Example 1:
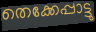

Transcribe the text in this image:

തെക്കേപ്പാട്ടു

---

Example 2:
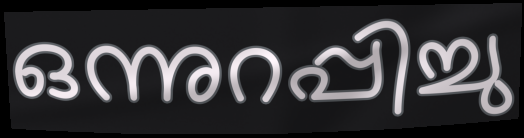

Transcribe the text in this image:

ഒന്നുറപ്പിച്ചു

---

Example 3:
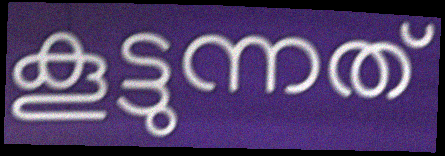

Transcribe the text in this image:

കൂട്ടുന്നത്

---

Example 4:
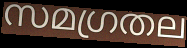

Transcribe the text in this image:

സമഗ്രതല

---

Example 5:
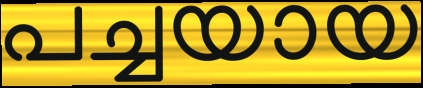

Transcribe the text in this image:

പച്ചയായ